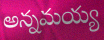
అన్నమయ్య